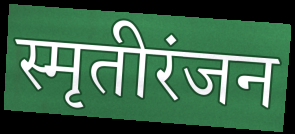
स्मृतीरंजन